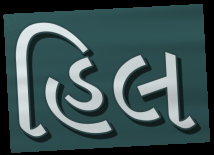
હિલ